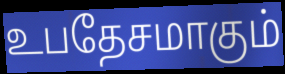
உபதேசமாகும்